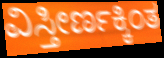
ವಿಸ್ತೀರ್ಣಕ್ಕಿಂತ